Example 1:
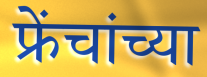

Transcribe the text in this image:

फ्रेंचांच्या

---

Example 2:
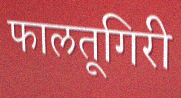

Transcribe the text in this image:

फालतूगिरी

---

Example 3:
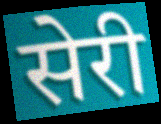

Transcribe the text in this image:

सेरी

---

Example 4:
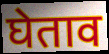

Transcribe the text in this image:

घेताव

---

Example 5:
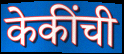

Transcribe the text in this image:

केकींची